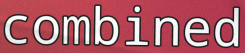
combined